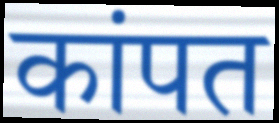
कांपत